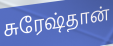
சுரேஷ்தான்